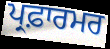
ਪ੍ਰਫ਼ਾਰਮਰ